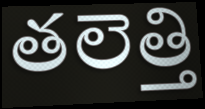
తలెత్తి